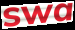
swa